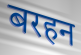
बरहन